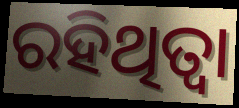
ରହିଥିତ୍ବା